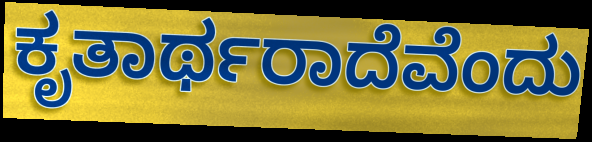
ಕೃತಾರ್ಥರಾದೆವೆಂದು